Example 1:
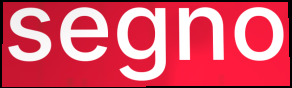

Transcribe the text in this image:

segno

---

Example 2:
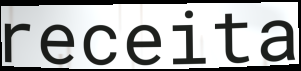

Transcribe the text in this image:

receita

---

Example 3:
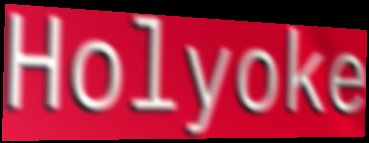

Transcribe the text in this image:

Holyoke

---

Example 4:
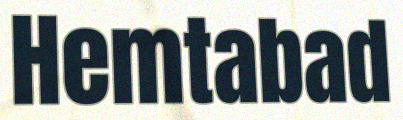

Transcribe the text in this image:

Hemtabad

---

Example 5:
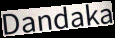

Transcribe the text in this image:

Dandaka